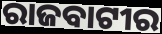
ରାଜବାଟୀର